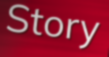
Story